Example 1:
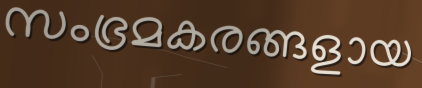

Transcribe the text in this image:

സംഭ്രമകരങ്ങളായ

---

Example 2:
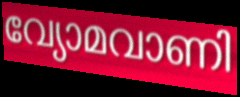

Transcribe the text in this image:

വ്യോമവാണി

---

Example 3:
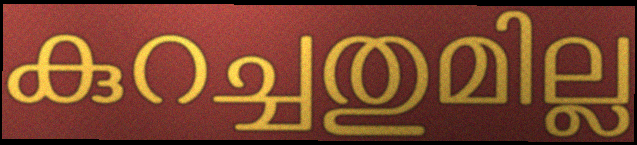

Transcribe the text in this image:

കുറച്ചതുമില്ല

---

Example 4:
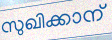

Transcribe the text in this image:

സുഖിക്കാന്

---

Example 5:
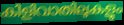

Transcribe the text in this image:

കിളിവാതിലുകളും